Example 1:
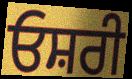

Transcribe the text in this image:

ਓਸ਼ਰੀ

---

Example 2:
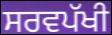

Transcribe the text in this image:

ਸਰਵਪੱਖੀ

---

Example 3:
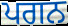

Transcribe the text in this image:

ਪਗਨ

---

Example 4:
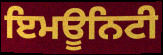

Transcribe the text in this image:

ਇਮਊਨਿਟੀ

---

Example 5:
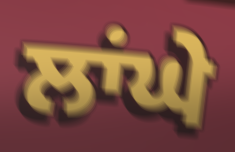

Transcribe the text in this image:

ਲਾਂਘੇ